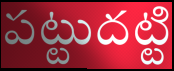
పట్టుదట్టి